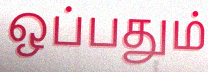
ஒப்பதும்